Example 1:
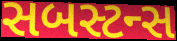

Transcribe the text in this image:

સબસ્ટન્સ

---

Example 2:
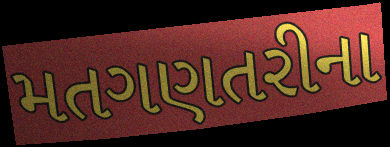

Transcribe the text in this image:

મતગણતરીના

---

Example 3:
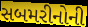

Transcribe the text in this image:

સબમરીનોની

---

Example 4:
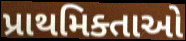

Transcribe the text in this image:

પ્રાથમિક્તાઓ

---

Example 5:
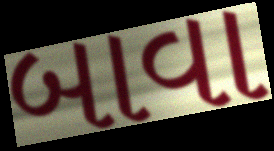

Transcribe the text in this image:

બાવા